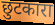
छुटकारा